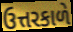
ઉત્તરકાળે